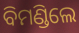
ବିମଣ୍ଡିଲେ